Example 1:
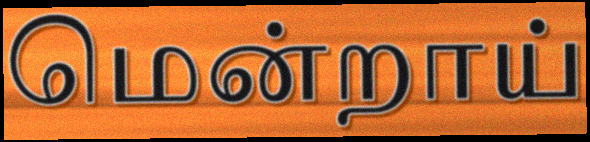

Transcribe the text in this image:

மென்றாய்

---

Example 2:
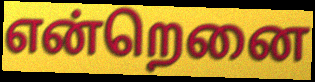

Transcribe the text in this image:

என்றெனை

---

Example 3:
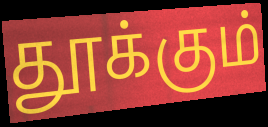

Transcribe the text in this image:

தூக்கும்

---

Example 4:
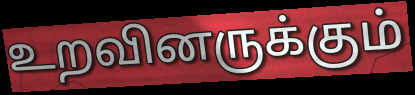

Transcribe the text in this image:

உறவினருக்கும்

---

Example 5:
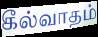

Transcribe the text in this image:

கீல்வாதம்